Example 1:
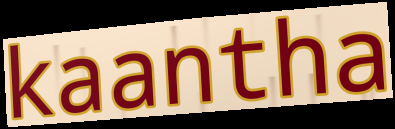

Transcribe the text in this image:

kaantha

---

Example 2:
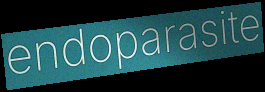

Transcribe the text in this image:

endoparasite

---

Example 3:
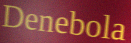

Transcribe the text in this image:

Denebola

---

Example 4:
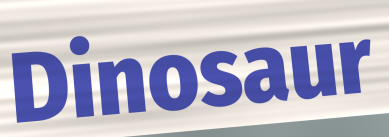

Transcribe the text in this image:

Dinosaur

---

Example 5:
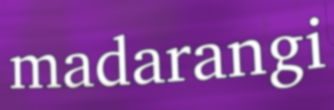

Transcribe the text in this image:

madarangi